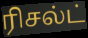
ரிசல்ட்